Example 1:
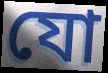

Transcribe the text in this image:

যো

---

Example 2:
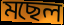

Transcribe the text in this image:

মছেল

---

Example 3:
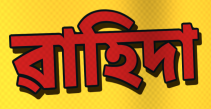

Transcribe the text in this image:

ৱাহিদা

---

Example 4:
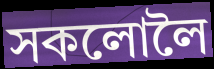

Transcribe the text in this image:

সকলোলৈ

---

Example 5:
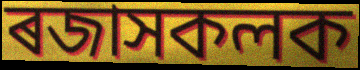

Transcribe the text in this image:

ৰজাসকলক